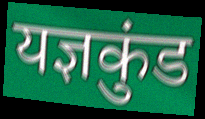
यज्ञकुंड